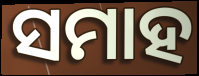
ସମାହ